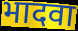
भादवा